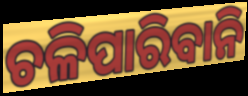
ଚଳିପାରିବାନି